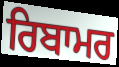
ਰਿਬਾਮਰ